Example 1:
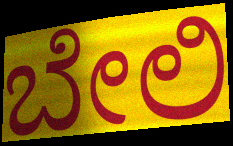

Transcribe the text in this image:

ಬೇಲಿ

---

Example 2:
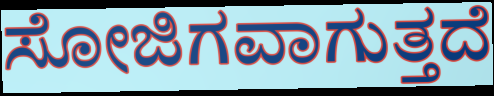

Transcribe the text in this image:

ಸೋಜಿಗವಾಗುತ್ತದೆ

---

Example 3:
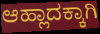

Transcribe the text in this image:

ಆಹ್ಲಾದಕ್ಕಾಗಿ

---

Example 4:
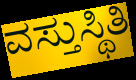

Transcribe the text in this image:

ವಸ್ತುಸ್ಥಿತಿ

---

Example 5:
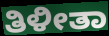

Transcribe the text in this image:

ತಿಳೀತಾ